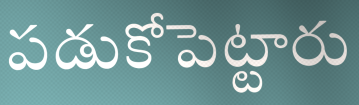
పడుకోపెట్టారు